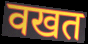
वखत